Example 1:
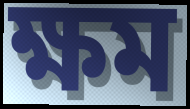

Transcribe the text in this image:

ক্ষম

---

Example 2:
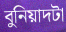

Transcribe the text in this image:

বুনিয়াদটা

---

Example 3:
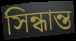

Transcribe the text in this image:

সিন্ধান্ত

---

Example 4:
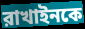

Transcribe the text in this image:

রাখাইনকে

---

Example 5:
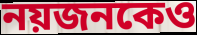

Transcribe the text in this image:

নয়জনকেও